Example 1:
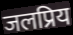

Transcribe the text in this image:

जलप्रिय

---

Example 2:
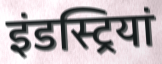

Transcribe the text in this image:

इंडस्ट्रियां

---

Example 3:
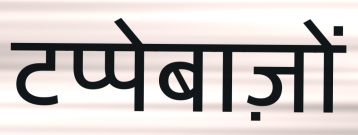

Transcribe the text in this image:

टप्पेबाज़ों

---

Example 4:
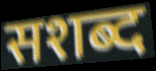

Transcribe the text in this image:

सशब्द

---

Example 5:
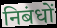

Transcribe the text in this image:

निबंधों